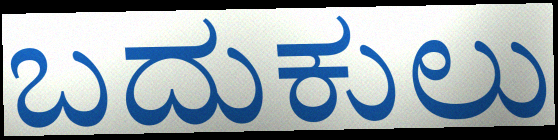
ಬದುಕುಲು